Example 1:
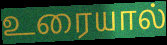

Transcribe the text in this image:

உரையால்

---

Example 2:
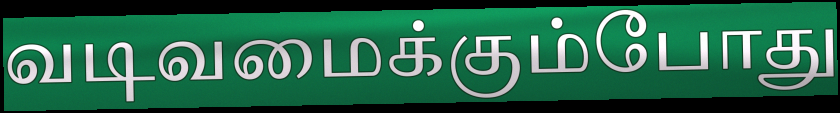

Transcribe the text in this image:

வடிவமைக்கும்போது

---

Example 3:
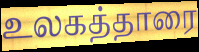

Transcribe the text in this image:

உலகத்தாரை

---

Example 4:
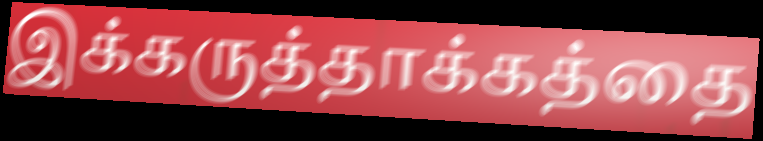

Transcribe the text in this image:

இக்கருத்தாக்கத்தை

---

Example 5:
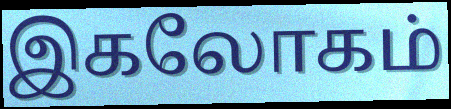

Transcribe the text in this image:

இகலோகம்